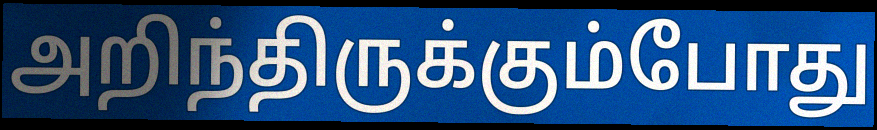
அறிந்திருக்கும்போது